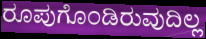
ರೂಪುಗೊಂಡಿರುವುದಿಲ್ಲ